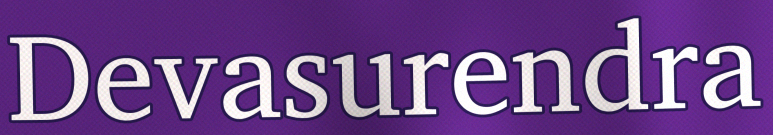
Devasurendra